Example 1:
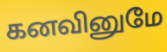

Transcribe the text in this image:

கனவினுமே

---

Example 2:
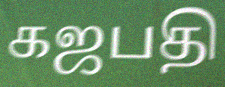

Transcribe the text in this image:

கஜபதி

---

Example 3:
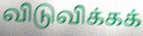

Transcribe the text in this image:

விடுவிக்கக்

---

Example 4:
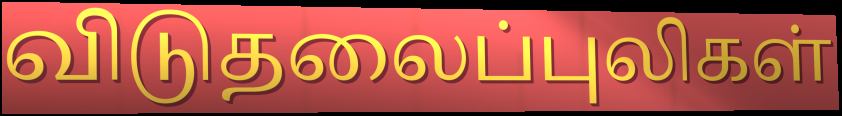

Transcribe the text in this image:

விடுதலைப்புலிகள்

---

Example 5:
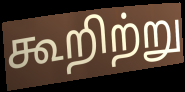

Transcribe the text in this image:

கூறிற்று